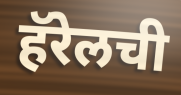
हॅरेलची